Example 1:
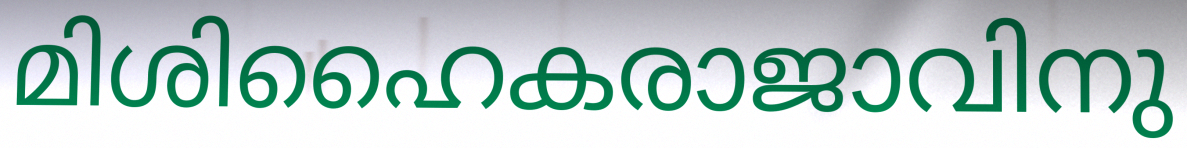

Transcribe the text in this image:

മിശിഹൈകരാജാവിനു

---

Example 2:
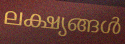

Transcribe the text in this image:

ലക്ഷ്യങ്ങൾ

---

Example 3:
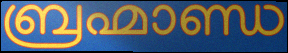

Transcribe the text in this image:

ബ്രഹ്മാണ്ഡ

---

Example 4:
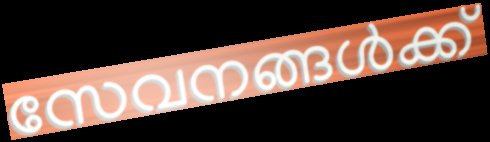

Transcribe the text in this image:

സേവനങ്ങൾക്ക്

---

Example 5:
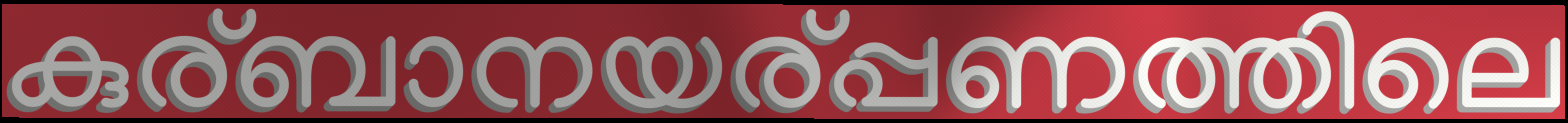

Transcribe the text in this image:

കുര്ബാനയര്പ്പണത്തിലെ